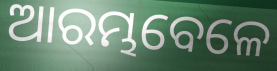
ଆରମ୍ଭବେଳେ